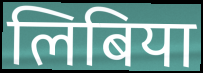
लिबिया